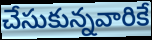
చేసుకున్నవారికే